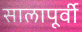
सालापूर्वी